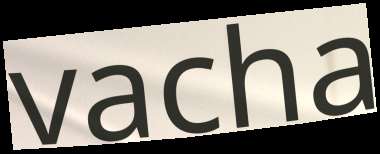
vacha